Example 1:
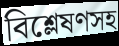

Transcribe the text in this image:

বিশ্লেষণসহ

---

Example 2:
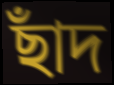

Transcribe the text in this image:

ছাঁদ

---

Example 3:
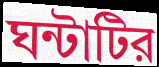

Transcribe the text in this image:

ঘন্টাটির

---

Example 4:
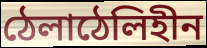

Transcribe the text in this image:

ঠেলাঠেলিহীন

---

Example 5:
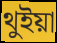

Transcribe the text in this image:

থুইয়া